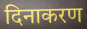
दिनाकरण